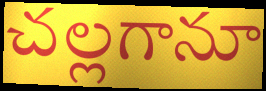
చల్లగానూ